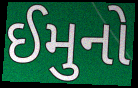
ઈમુનો